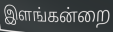
இளங்கன்றை